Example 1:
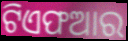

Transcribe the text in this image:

ଟିଏଫଆର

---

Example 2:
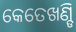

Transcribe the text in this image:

କେତେଖଣ୍ଡି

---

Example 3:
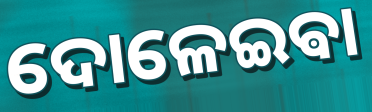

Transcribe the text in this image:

ଦୋଳେଇଵା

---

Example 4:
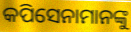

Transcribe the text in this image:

କପିସେନାମାନଙ୍କୁ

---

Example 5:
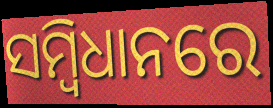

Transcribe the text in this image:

ସମ୍ବିଧାନରେ